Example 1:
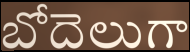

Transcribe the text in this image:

బోదెలుగా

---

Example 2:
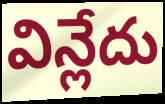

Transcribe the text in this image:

విన్లేదు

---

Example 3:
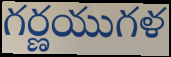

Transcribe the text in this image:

గర్ణయుగళ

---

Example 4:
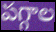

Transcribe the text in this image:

పగ్గాల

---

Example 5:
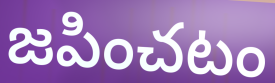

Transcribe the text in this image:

జపించటం